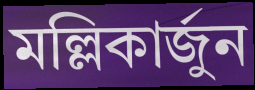
মল্লিকার্জুন